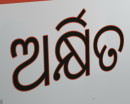
ଅର୍କ୍ଷିତ